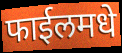
फाईलमधे